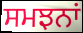
ਸਮਝਨਾਂ